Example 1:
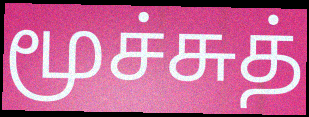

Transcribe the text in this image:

மூச்சுத்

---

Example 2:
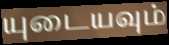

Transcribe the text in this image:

யுடையவும்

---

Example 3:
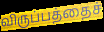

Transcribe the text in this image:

விருப்பத்தைச்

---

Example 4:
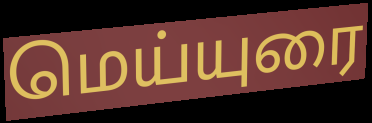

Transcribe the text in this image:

மெய்யுரை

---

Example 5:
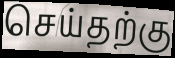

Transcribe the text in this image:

செய்தற்கு